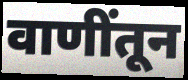
वाणींतून